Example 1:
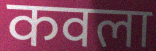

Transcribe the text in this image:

कवला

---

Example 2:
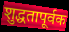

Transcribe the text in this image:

शुद्धतापूर्वक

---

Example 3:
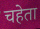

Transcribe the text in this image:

चहेता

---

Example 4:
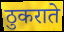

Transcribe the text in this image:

ठुकराते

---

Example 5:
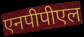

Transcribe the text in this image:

एनपीपीएल